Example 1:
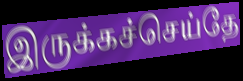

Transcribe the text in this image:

இருக்கச்செய்தே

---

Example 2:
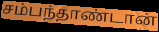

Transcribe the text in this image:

சம்பந்தாண்டான்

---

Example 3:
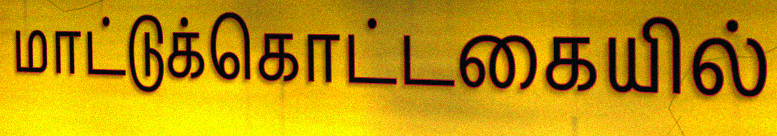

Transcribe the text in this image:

மாட்டுக்கொட்டகையில்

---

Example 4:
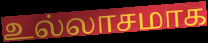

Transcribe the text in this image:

உல்லாசமாக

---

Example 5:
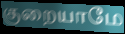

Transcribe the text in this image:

குறையாமே